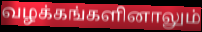
வழக்கங்களினாலும்